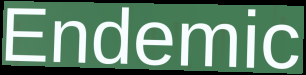
Endemic